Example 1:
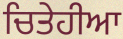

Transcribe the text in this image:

ਚਿਤੇਹੀਆ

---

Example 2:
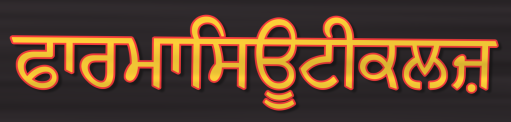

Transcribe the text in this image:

ਫਾਰਮਾਸਿਊਟੀਕਲਜ਼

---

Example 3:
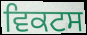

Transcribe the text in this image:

ਵਿਕਟਸ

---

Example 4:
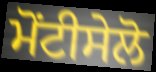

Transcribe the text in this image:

ਮੋਂਟੀਸੇਲੋ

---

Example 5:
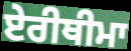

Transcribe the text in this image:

ਏਰੀਥੀਮਾ